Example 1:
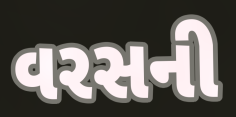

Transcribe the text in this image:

વરસની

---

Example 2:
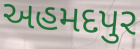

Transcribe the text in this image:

અહમદપુર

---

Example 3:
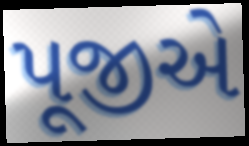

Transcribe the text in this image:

પૂજીએ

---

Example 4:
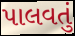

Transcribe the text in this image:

પાલવતું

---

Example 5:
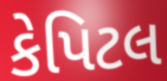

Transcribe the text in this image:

કેપિટલ